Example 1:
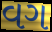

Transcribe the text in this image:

વગ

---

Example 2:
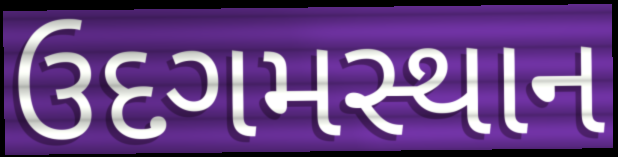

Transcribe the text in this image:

ઉદગમસ્થાન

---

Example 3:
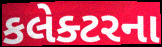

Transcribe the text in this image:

કલેક્ટરના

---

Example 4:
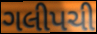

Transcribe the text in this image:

ગલીપચી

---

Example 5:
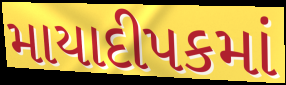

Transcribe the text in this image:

માયાદીપકમાં